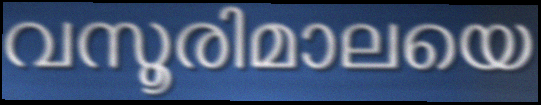
വസൂരിമാലയെ